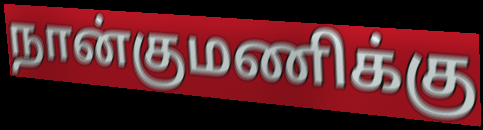
நான்குமணிக்கு